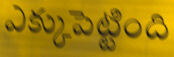
ఎక్కుపెట్టింది